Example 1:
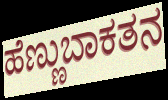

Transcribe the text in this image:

ಹೆಣ್ಣುಬಾಕತನ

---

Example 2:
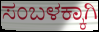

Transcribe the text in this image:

ಸಂಬಳಕ್ಕಾಗಿ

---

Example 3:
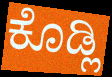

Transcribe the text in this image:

ಕೊಡ್ಲಿ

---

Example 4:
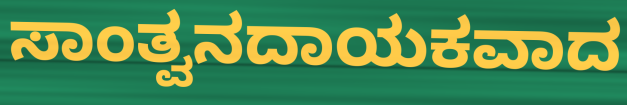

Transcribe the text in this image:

ಸಾಂತ್ವನದಾಯಕವಾದ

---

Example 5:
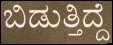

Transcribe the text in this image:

ಬಿಡುತ್ತಿದ್ದೆ